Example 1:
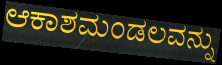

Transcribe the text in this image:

ಆಕಾಶಮಂಡಲವನ್ನು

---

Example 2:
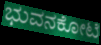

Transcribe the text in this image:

ಭುವನಕೋಟೆ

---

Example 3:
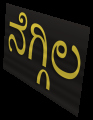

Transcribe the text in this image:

ನೆಗ್ಗಿಲ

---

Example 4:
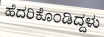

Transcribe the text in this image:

ಹೆದರಿಕೊಂಡಿದ್ದಳು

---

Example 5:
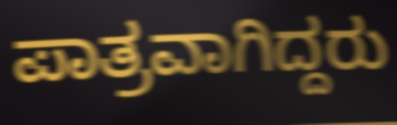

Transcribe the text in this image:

ಪಾತ್ರವಾಗಿದ್ದರು